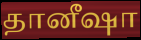
தானீஷா